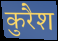
कुरैश